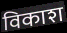
विकाश